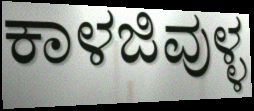
ಕಾಳಜಿವುಳ್ಳ